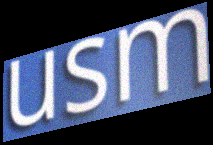
usm